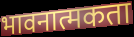
भावनात्मकता